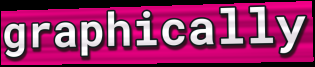
graphically